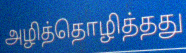
அழித்தொழித்தது